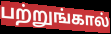
பற்றுங்கால்